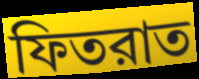
ফিতরাত